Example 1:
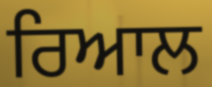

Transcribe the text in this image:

ਰਿਆਲ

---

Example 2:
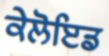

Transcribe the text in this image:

ਕੇਲੋਇਡ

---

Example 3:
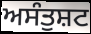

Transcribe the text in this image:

ਅਸੰਤੁਸ਼ਟ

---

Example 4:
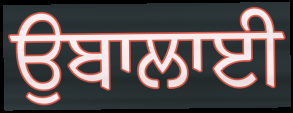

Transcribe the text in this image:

ਉਬਾਲਾਈ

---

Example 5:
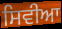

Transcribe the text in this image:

ਸਿਵੀਆ